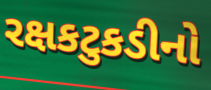
રક્ષકટુકડીનો